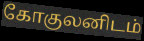
கோகுலனிடம்